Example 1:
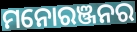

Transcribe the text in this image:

ମନୋରଞ୍ଜନର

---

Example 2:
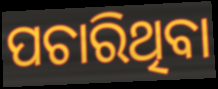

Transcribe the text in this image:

ପଚାରିଥିବା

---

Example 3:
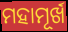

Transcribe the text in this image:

ମହାମୂର୍ଖ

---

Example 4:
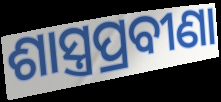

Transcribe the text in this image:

ଶାସ୍ତ୍ରପ୍ରବୀଣା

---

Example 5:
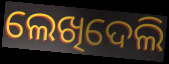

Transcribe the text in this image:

ଲେଖିଦେଲି